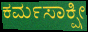
ಕರ್ಮಸಾಕ್ಷೀ